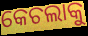
କେଚଲାକୁ